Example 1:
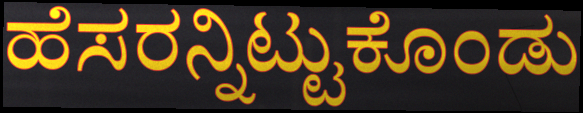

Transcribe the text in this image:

ಹೆಸರನ್ನಿಟ್ಟುಕೊಂಡು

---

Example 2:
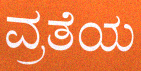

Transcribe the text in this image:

ವ್ರತೆಯ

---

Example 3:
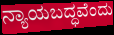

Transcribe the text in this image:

ನ್ಯಾಯಬದ್ಧವೆಂದು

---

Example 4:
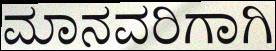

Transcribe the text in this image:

ಮಾನವರಿಗಾಗಿ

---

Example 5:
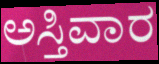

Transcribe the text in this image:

ಅಸ್ತಿವಾರ